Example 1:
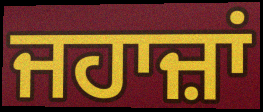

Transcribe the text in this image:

ਜਹਾਜ਼ਾਂ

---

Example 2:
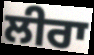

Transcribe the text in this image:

ਲੀਰਾ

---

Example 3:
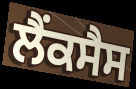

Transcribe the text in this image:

ਲੈਂਕਸੈਸ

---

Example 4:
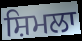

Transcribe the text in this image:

ਸ਼ਿਮਲਾ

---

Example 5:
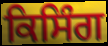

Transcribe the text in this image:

ਕਿਸਿੰਗ